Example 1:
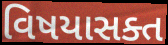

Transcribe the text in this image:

વિષયાસક્ત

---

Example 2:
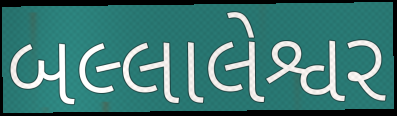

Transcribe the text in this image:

બલ્લાલેશ્વર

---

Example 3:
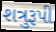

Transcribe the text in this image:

શત્રુરૂપી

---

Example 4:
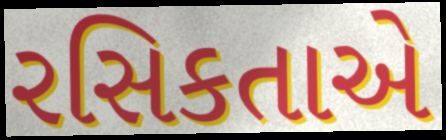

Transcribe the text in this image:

રસિકતાએ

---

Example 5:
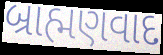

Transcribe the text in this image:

બ્રાહ્મણવાદ